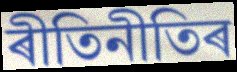
ৰীতিনীতিৰ